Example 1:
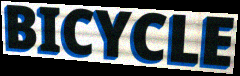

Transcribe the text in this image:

BICYCLE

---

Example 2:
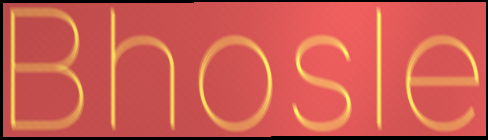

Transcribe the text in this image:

Bhosle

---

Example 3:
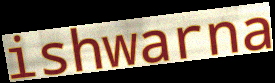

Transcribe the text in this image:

ishwarna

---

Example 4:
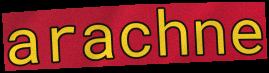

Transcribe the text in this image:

arachne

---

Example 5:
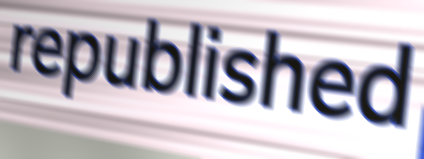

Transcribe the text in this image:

republished